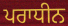
ਪਰਾਧੀਨ